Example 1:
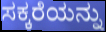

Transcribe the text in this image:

ಸಕ್ಕರೆಯನ್ನು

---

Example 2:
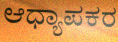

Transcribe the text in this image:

ಆಧ್ಯಾಪಕರ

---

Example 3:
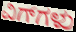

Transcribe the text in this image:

ವಿಗ್‌ಗಳು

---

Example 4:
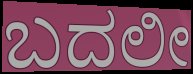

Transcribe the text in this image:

ಬದಲೀ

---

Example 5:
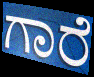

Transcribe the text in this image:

ಗಾರೆ